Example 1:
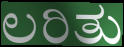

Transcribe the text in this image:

ಲರಿತು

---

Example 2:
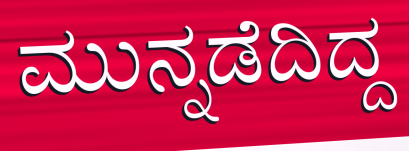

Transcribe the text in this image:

ಮುನ್ನಡೆದಿದ್ದ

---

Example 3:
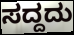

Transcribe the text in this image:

ಸದ್ದದು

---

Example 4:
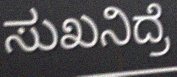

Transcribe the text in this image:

ಸುಖನಿದ್ರೆ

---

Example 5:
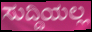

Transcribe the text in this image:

ಸುದ್ದಿಯಲ್ಲ